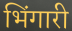
भिंगारी